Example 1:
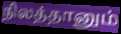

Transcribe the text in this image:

நிலத்தானும்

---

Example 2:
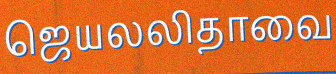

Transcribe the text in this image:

ஜெயலலிதாவை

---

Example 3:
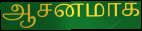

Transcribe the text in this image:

ஆசனமாக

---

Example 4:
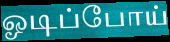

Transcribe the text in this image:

ஓடிப்போய்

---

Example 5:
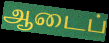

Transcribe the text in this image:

ஆடைப்